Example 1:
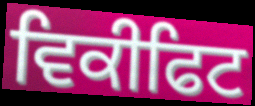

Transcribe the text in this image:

ਵਿਕੀਫਿਟ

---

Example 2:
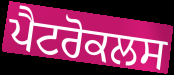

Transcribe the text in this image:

ਪੈਟਰੋਕਲਸ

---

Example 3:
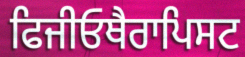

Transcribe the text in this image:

ਫਿਜੀਓਥੈਰਾਪਿਸਟ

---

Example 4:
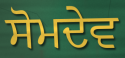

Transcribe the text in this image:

ਸੋਮਦੇਵ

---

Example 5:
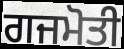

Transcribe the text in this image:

ਗਜਮੋਤੀ